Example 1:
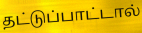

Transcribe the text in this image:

தட்டுப்பாட்டால்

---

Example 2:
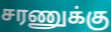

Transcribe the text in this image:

சரணுக்கு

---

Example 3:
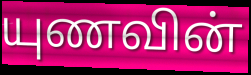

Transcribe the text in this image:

யுணவின்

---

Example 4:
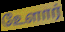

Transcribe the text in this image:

உேளார்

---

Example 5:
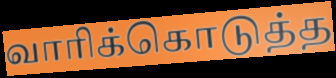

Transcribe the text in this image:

வாரிக்கொடுத்த